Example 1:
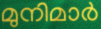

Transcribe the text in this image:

മുനിമാർ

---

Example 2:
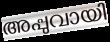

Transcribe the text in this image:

അപ്പുവായി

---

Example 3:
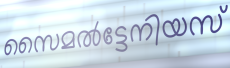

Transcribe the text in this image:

സൈമൽട്ടേനിയസ്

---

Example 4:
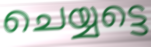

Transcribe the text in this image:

ചെയ്യട്ടെ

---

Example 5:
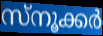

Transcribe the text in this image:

സ്നൂക്കർ